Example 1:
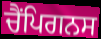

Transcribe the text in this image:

ਚੈਂਪਿਗਨਸ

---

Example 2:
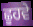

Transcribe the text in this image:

ਛੂਹਵੇ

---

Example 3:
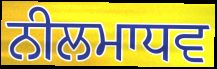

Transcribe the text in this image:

ਨੀਲਮਾਧਵ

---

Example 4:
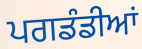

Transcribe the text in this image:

ਪਗਡੰਡੀਆਂ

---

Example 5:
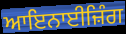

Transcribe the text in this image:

ਆਇਨਾਈਜ਼ਿੰਗ